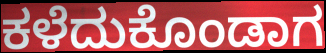
ಕಳೆದುಕೊಂಡಾಗ